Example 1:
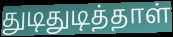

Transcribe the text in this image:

துடிதுடித்தாள்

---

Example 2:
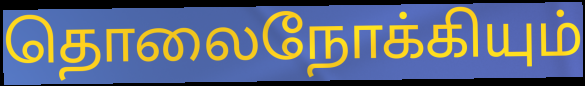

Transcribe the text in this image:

தொலைநோக்கியும்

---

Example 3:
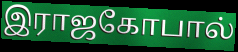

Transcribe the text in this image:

இராஜகோபால்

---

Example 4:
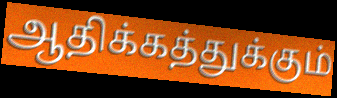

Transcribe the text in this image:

ஆதிக்கத்துக்கும்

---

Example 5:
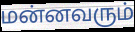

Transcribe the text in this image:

மன்னவரும்